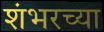
शंभरच्या